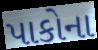
પાકોના